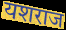
यशराज